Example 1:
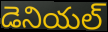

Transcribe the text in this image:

డెనియల్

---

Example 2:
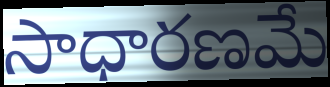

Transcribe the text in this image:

సాధారణమే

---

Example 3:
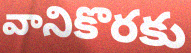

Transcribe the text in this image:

వానికొరకు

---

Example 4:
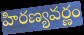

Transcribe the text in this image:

హిరణ్యవర్ణం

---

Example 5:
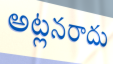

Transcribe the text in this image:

అట్లనరాదు